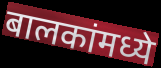
बालकांमध्ये